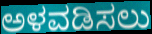
ಅಳವಡಿಸಲು